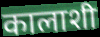
कालाशी